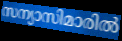
സന്യാസിമാരിൽ